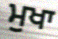
ਮੁਖਾ